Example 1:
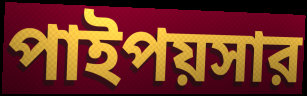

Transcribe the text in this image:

পাইপয়সার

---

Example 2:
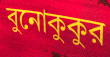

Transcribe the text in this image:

বুনোকুকুর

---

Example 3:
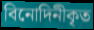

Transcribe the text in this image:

বিনোদিনীকৃত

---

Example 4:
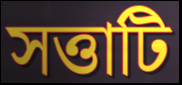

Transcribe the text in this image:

সত্তাটি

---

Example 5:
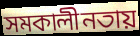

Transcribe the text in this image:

সমকালীনতায়